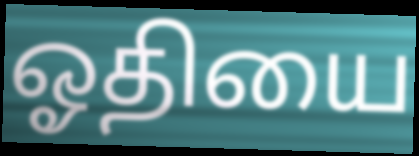
ஓதியை